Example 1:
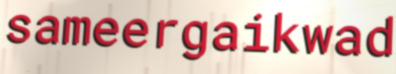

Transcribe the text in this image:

sameergaikwad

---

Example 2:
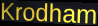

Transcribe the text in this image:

Krodham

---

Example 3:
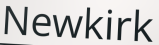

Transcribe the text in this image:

Newkirk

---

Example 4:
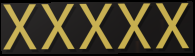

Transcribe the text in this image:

XXXXX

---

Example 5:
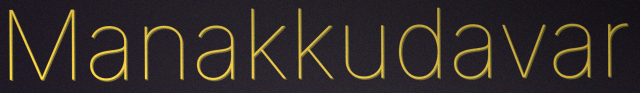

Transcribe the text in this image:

Manakkudavar